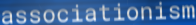
associationism